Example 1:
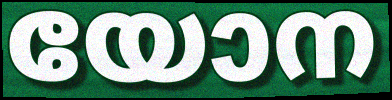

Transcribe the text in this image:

യോന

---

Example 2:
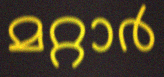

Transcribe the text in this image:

മറ്റാർ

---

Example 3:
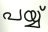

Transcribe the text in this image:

പയ്യ്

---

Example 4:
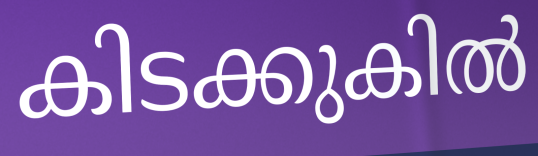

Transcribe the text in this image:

കിടക്കുകിൽ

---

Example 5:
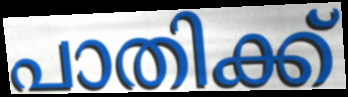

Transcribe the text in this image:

പാതിക്ക്